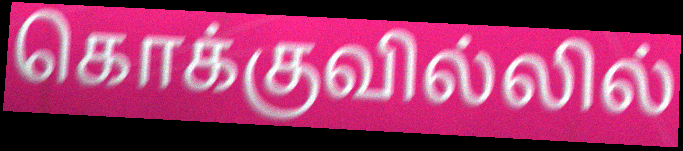
கொக்குவில்லில்